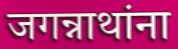
जगन्नाथांना